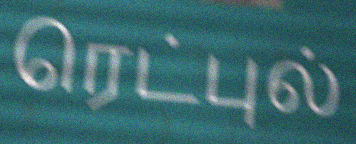
ரெட்புல்